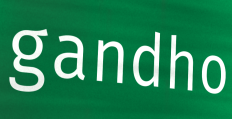
gandho